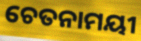
ଚେତନାମୟୀ